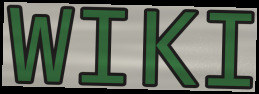
WIKI